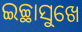
ଇଚ୍ଛାସୁଖେ